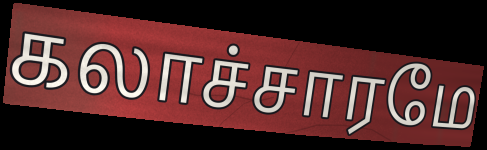
கலாச்சாரமே